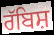
ਰੱਬਿਸ਼